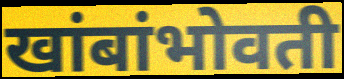
खांबांभोवती